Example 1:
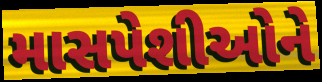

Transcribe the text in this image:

માસપેશીઓને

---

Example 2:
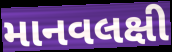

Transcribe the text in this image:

માનવલક્ષી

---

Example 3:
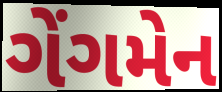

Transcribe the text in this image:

ગેંગમેન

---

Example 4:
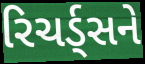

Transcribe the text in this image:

રિચર્ડ્સને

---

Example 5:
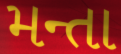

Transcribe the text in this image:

મન્તા